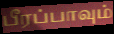
பீரப்பாவும்